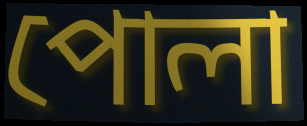
পোলা